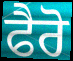
ਫੈਰੋ